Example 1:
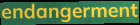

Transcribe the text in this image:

endangerment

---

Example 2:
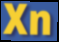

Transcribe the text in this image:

Xn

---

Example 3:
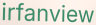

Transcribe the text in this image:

irfanview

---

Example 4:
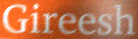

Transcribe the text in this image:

Gireesh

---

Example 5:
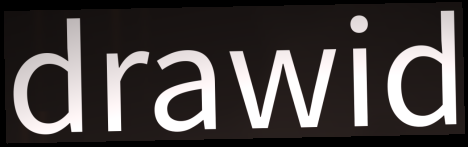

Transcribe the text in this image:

drawid